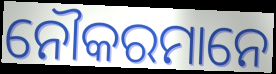
ନୌକରମାନେ